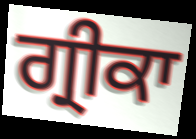
ਗ੍ਰੀਕਾ